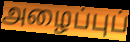
அழைப்புப்